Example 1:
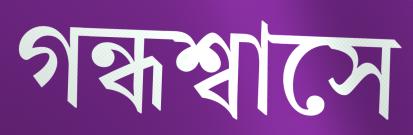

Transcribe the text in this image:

গন্ধশ্বাসে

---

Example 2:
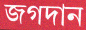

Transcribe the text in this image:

জগদান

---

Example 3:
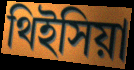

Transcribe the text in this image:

থিইসিয়া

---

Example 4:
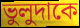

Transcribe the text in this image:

ভুলুদাকে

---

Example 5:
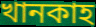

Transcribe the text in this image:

খানকাহ